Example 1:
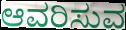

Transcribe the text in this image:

ಆವರಿಸುವ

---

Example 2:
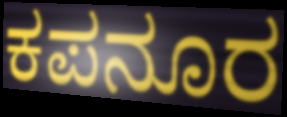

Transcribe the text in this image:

ಕಪನೂರ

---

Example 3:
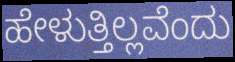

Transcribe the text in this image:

ಹೇಳುತ್ತಿಲ್ಲವೆಂದು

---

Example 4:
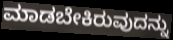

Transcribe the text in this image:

ಮಾಡಬೇಕಿರುವುದನ್ನು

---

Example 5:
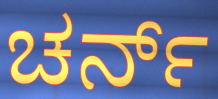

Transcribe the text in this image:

ಚರ್ನ್